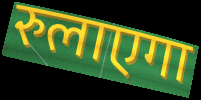
रुलाएगा